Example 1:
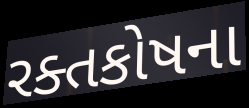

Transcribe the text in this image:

રક્તકોષના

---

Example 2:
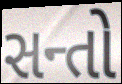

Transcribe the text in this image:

સન્તો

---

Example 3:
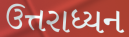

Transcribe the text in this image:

ઉત્તરાધ્યન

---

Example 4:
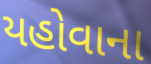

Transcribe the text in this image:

યહોવાના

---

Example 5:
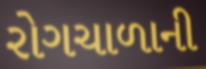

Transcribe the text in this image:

રોગચાળાની